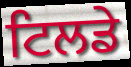
ਟਿਲਡੇ